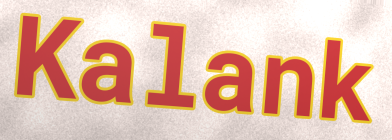
Kalank